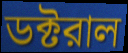
ডক্টরাল